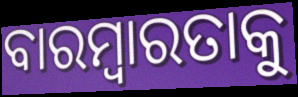
ବାରମ୍ବାରତାକୁ